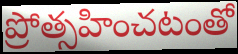
ప్రోత్సహించటంతో